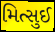
મિત્સુઈ